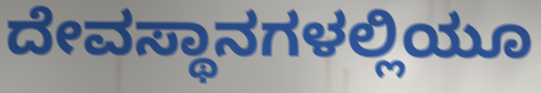
ದೇವಸ್ಥಾನಗಳಲ್ಲಿಯೂ